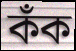
কঁক